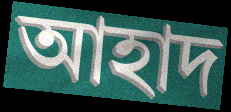
আহাদ